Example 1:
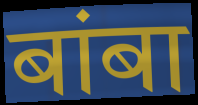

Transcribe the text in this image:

बांबा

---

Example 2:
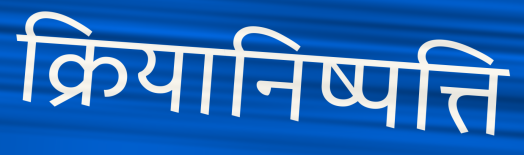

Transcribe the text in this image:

क्रियानिष्पत्ति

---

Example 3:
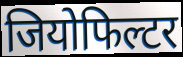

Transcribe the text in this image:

जियोफिल्टर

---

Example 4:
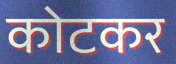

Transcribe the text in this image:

कोटकर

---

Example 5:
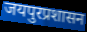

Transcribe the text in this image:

जयपुरप्रशासन